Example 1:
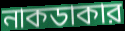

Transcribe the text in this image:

নাকডাকার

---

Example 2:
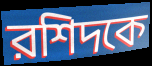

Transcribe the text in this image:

রশিদকে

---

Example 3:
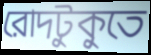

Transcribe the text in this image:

রোদটুকুতে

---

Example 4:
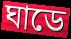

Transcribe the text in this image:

ঘাডে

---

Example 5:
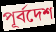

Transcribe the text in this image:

পূর্বদেশ